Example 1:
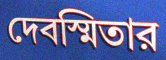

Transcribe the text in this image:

দেবস্মিতার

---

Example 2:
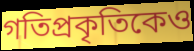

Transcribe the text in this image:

গতিপ্রকৃতিকেও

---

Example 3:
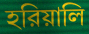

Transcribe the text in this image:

হরিয়ালি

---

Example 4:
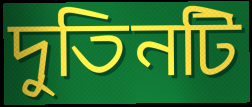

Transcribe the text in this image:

দুতিনটি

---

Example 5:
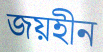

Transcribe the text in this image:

জয়হীন